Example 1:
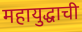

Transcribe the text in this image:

महायुद्धाची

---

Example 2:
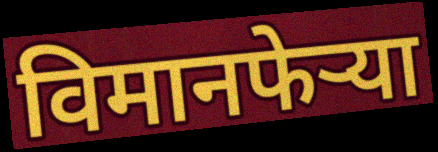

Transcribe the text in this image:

विमानफेऱ्या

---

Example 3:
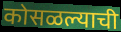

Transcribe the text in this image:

कोसळल्याची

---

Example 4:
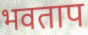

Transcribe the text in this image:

भवताप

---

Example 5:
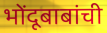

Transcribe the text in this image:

भोंदूबाबांची